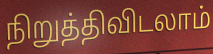
நிறுத்திவிடலாம்